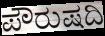
ಪೌರುಷದಿ